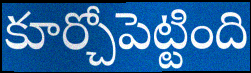
కూర్చోపెట్టింది